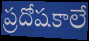
ప్రదోషకాలే